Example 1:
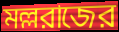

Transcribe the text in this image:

মল্লরাজের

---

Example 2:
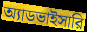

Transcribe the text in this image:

অ্যাডভাইসারি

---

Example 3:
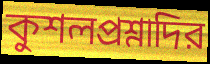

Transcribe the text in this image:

কুশলপ্রশ্নাদির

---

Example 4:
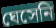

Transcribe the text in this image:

ঘেসেনি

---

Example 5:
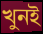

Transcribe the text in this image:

খুনই